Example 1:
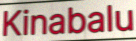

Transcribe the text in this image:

Kinabalu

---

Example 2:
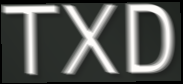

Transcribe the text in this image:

TXD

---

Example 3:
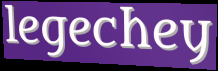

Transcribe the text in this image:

legechey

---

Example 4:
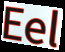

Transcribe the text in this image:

Eel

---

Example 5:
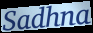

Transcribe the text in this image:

Sadhna